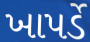
ખાપર્ડે